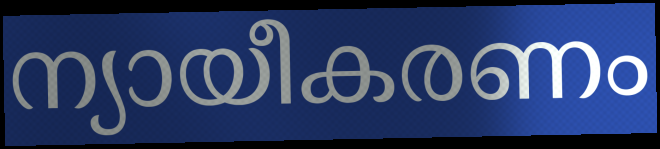
ന്യായീകരണം